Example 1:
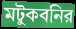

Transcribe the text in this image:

মটুকবনির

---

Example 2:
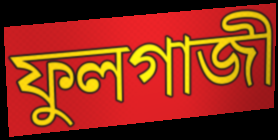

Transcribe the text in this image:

ফুলগাজী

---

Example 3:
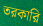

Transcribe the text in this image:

তরকারি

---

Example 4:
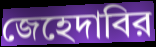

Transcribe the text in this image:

জেহেদাবির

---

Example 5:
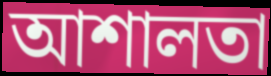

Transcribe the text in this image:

আশালতা